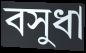
বসুধা